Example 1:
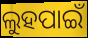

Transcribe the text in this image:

ଲୁହପାଇଁ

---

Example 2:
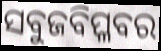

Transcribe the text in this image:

ସବୁଜବିପ୍ଳବର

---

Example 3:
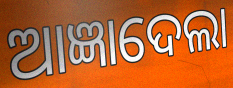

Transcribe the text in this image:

ଆଜ୍ଞାଦେଲା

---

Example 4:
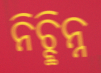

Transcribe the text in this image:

ନିଚ୍ଛିନ୍ନ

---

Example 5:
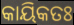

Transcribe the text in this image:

କାୟିକତଃ